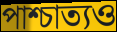
পাশ্চাত্যও